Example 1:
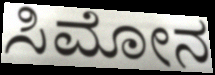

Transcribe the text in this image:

ಸಿಮೋನ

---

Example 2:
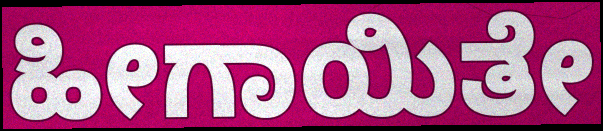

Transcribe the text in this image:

ಹೀಗಾಯಿತೇ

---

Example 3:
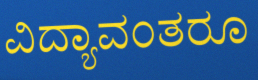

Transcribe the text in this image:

ವಿದ್ಯಾವಂತರೂ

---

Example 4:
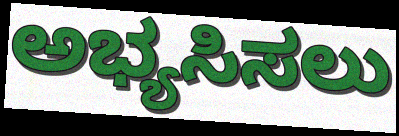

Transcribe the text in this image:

ಅಭ್ಯಸಿಸಲು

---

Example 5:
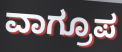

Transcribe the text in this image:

ವಾಗ್ರೂಪ